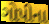
ગોપીના